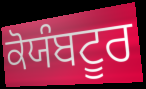
ਕੋਯੰਬਟੂਰ